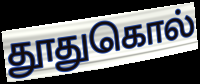
தூதுகொல்